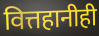
वित्तहानीही